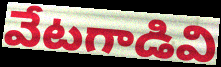
వేటగాడివి